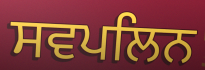
ਸਵਪਲਿਨ